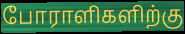
போராளிகளிற்கு